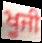
ਖੂਜੀ